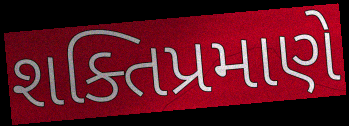
શક્તિપ્રમાણે